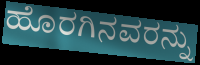
ಹೊರಗಿನವರನ್ನು